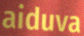
aiduva